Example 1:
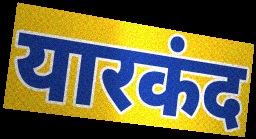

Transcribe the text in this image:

यारकंद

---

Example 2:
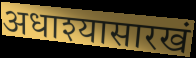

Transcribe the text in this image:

अधाश्यासारखं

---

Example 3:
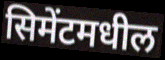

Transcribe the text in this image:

सिमेंटमधील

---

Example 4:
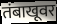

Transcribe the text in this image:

तंबाखूवर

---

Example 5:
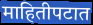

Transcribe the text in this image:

माहितीपटात